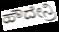
ಹೌದೇನ್ರಿ